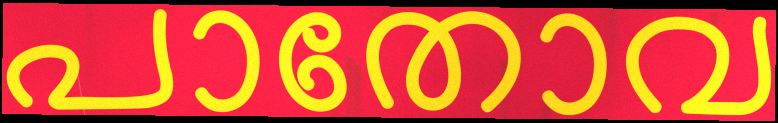
പാതോവ